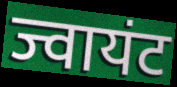
ज्वायंट